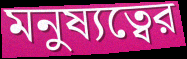
মনুষ্যত্বের